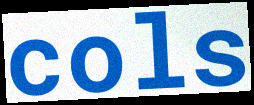
cols